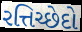
રત્તિચ્છેદો